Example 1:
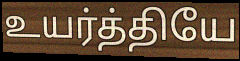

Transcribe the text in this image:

உயர்த்தியே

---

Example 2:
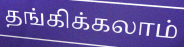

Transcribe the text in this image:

தங்கிக்கலாம்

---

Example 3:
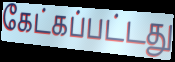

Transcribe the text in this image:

கேட்கப்பட்டது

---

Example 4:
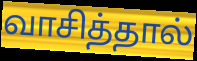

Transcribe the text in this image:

வாசித்தால்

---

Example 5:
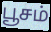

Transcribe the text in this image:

பூசம்